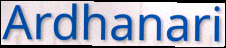
Ardhanari